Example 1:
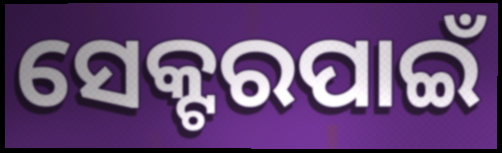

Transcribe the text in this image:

ସେକ୍ଟରପାଇଁ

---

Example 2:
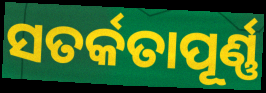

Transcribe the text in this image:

ସତର୍କତାପୂର୍ଣ୍ଣ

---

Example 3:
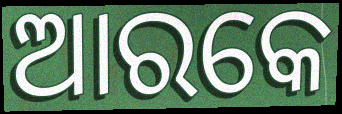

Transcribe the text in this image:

ଆରକେ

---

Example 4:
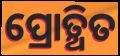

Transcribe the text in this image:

ପ୍ରୋତ୍ଥିତ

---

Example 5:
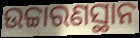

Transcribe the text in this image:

ଉଚ୍ଚାରଣସ୍ଥାନ